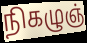
நிகழுஞ்